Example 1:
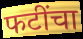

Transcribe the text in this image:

फटींचा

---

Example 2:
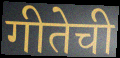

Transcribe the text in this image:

गीतेची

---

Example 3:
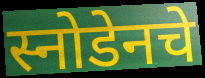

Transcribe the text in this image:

स्नोडेनचे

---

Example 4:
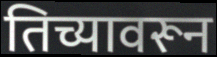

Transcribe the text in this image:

तिच्यावरून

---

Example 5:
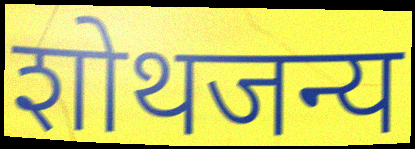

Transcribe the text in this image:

शोथजन्य